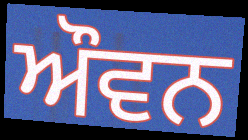
ਔਵਨ